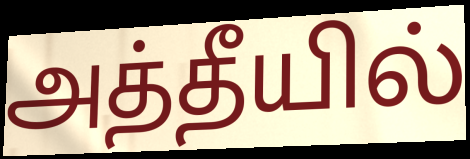
அத்தீயில்